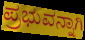
ಪ್ರಭುವನ್ನಾಗಿ